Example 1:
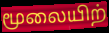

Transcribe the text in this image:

மூலையிற்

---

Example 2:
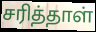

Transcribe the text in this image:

சரித்தாள்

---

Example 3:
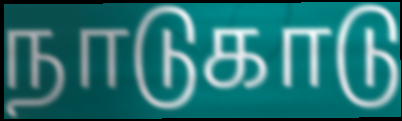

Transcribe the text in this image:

நாடுகாடு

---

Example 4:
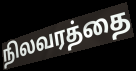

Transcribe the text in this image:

நிலவரத்தை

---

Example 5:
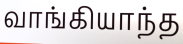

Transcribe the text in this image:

வாங்கியாந்த